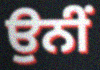
ਉਨੀਂ